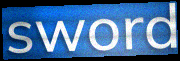
sword